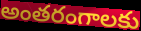
అంతరంగాలకు